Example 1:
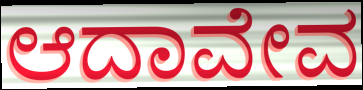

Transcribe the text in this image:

ಆದಾವೇವ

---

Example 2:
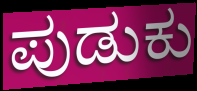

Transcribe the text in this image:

ಪುಡುಕು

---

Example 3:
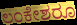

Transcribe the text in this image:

ಲಂಕೇಶರೂ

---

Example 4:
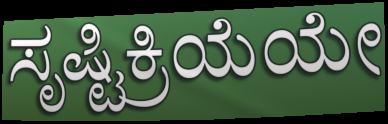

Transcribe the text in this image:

ಸೃಷ್ಟಿಕ್ರಿಯೆಯೇ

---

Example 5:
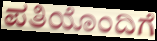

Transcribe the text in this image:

ಪತಿಯೊಂದಿಗೆ